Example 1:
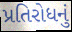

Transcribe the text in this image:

પ્રતિરોધનું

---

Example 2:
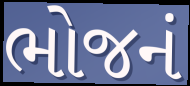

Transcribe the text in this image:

ભોજનં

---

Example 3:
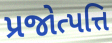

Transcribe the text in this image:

પ્રજોત્પત્તિ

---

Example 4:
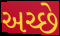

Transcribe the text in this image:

અચ્છે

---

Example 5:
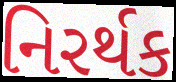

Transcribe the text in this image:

નિરર્થક